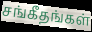
சங்கீதங்கள்